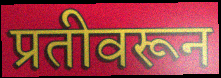
प्रतीवरून